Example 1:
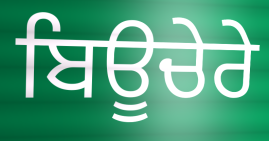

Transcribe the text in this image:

ਬਿਊਚੇਰੇ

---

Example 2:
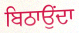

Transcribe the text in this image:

ਬਿਠਾਉਂਦਾ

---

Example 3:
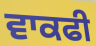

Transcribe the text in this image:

ਵਾਕਫੀ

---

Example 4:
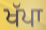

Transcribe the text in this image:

ਖੱਪਾ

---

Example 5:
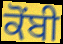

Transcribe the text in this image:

ਕੋਂਬੀ